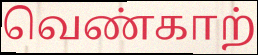
வெண்காற்